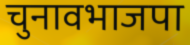
चुनावभाजपा